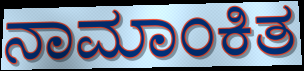
ನಾಮಾಂಕಿತ